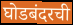
घोडबंदरची